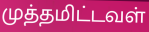
முத்தமிட்டவள்